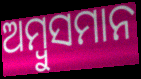
ଅମ୍ବୁସମାନ